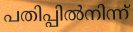
പതിപ്പിൽനിന്ന്